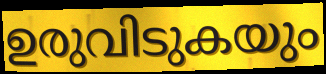
ഉരുവിടുകയും